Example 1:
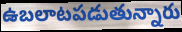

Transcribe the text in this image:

ఉబలాటపడుతున్నారు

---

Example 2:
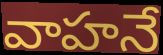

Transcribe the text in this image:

వాహనే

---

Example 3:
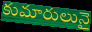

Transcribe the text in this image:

కుమారులునై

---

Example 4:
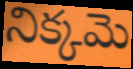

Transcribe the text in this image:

నిక్కమె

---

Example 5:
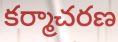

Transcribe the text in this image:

కర్మాచరణ